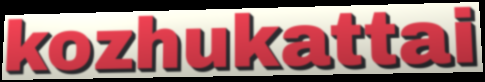
kozhukattai